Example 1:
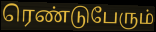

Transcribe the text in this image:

ரெண்டுபேரும்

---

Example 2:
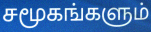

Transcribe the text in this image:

சமூகங்களும்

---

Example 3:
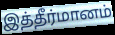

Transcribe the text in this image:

இத்தீர்மானம்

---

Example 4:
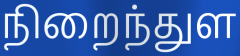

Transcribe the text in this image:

நிறைந்துள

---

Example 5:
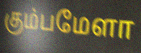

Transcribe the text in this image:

கும்பமேளா